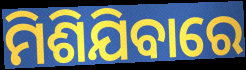
ମିଶିଯିବାରେ